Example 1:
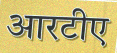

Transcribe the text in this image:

आरटीए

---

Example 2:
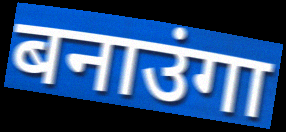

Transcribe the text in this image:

बनाउंगा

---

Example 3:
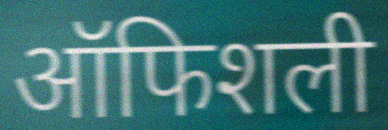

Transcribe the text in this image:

ऑफिशली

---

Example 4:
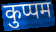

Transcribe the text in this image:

कुप्पम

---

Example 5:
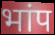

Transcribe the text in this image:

भांप